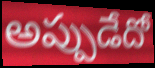
అప్పుడేదో